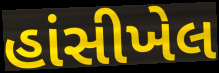
હાંસીખેલ